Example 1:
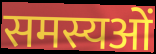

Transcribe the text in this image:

समस्यओं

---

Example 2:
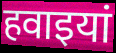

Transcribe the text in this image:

हवाइयां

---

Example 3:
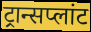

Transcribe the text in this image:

ट्रान्सप्लांट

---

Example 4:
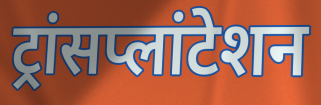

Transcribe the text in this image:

ट्रांसप्लांटेशन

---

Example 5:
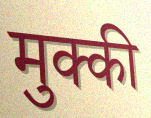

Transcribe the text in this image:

मुक्की